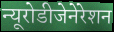
न्यूरोडीजेनेरेशन